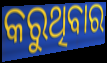
କରୁଥିବାର